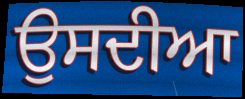
ਉਸਦੀਆ